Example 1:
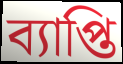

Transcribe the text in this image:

ব্যাপ্তি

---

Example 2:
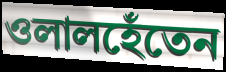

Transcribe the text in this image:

ওলালহেঁতেন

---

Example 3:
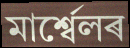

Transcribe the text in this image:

মাৰ্শ্বেলৰ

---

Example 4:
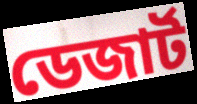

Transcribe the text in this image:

ডেজাৰ্ট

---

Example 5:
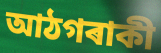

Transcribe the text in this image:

আঠগৰাকী